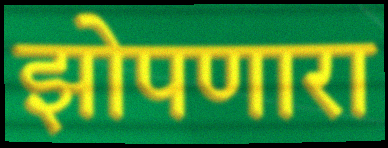
झोपणारा